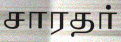
சாரதர்